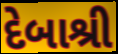
દેબાશ્રી